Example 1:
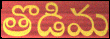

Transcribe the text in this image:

తొడిమ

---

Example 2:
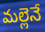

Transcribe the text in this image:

మల్లెనే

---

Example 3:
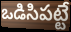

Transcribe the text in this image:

ఒడిసిపట్టే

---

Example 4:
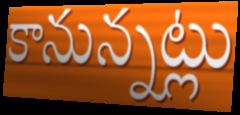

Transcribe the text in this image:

కానున్నట్లు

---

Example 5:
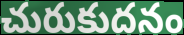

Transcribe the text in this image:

చురుకుదనం